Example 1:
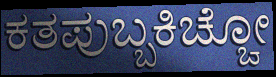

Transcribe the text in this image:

ಕತಪುಬ್ಬಕಿಚ್ಚೋ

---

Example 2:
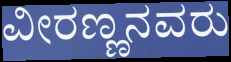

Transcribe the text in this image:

ವೀರಣ್ಣನವರು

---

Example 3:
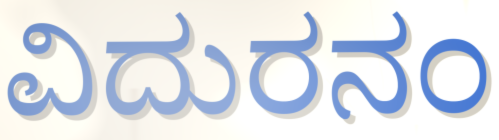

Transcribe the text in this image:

ವಿದುರನಂ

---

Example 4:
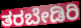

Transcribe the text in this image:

ತರಬೇಡಿರಿ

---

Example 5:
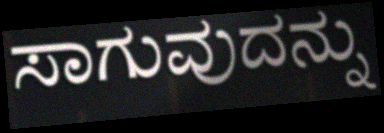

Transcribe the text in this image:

ಸಾಗುವುದನ್ನು